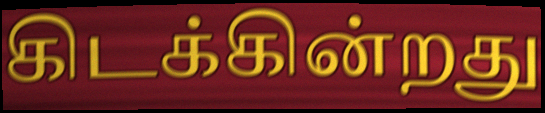
கிடக்கின்றது